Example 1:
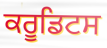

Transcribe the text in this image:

ਕਰੂਡਿਟਸ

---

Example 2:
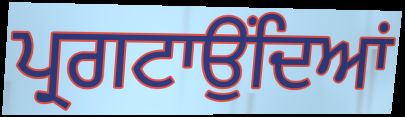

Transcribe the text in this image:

ਪ੍ਰਗਟਾਉਂਦਿਆਂ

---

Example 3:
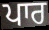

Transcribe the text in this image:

ਪਾਰ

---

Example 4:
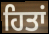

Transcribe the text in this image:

ਹਿਤਾਂ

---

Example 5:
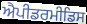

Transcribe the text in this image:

ਐਪੀਡਰਮੀਡਿਸ